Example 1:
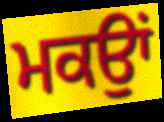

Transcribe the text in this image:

ਮਕਉਾਂ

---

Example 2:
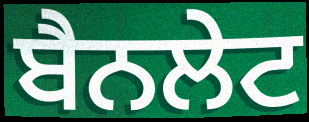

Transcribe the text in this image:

ਬੈਨਲੇਟ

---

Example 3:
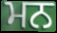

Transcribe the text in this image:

ਮਨ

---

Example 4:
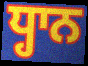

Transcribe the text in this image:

ਧ੍ਹਾਨ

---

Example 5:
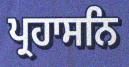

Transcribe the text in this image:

ਪ੍ਰਹਾਸਨਿ